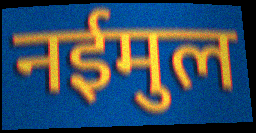
नईमुल